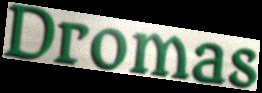
Dromas